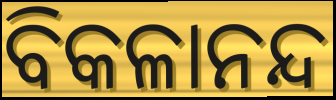
ବିକଳାନନ୍ଦ